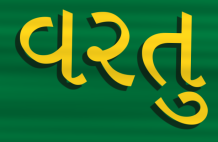
વરતુ